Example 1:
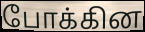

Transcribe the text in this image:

போக்கின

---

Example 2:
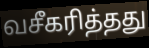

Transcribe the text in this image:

வசீகரித்தது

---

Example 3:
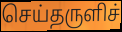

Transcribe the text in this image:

செய்தருளிச்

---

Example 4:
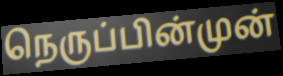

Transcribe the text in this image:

நெருப்பின்முன்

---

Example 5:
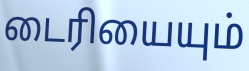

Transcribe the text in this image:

டைரியையும்